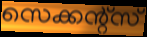
സെക്കന്റ്സ്